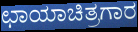
ಛಾಯಾಚಿತ್ರಗಾರ